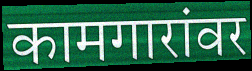
कामगारांवर